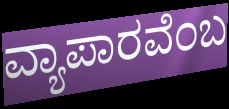
ವ್ಯಾಪಾರವೆಂಬ